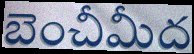
బెంచీమీద